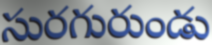
సురగురుండు